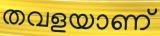
തവളയാണ്